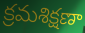
క్రమశిక్షణా